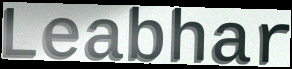
Leabhar